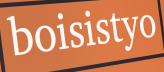
boisistyo